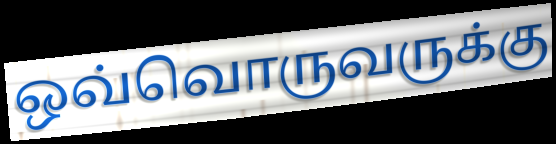
ஒவ்வொருவருக்கு